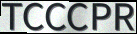
TCCCPR